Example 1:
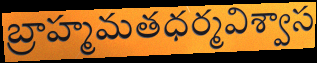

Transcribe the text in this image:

బ్రాహ్మమతధర్మవిశ్వాస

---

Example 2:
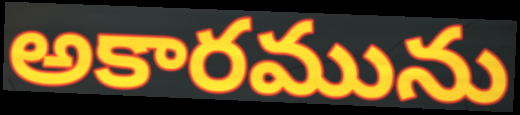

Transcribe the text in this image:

అకారమును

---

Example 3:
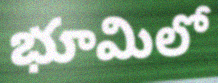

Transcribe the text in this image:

భూమిలో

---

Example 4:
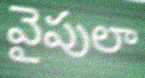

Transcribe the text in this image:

వైపులా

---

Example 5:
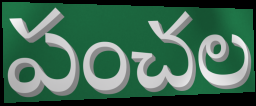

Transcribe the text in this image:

పంచల